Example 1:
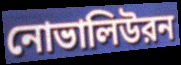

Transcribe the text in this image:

নোভালিউরন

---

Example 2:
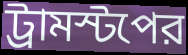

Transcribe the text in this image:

ট্রামস্টপের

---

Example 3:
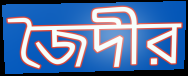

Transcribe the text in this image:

জৈদীর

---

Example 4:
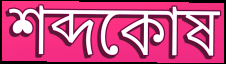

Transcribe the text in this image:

শব্দকোষ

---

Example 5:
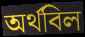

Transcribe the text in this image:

অর্থবিল